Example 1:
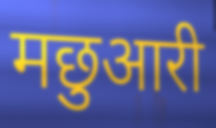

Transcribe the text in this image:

मछुआरी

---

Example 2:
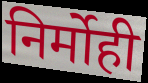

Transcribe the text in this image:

निर्मोही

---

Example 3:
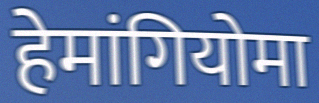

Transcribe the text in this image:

हेमांगियोमा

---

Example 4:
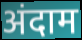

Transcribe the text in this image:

अंदाम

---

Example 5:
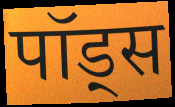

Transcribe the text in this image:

पॉड्स